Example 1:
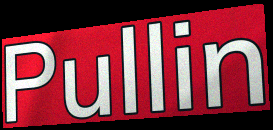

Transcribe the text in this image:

Pullin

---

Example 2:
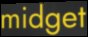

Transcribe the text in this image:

midget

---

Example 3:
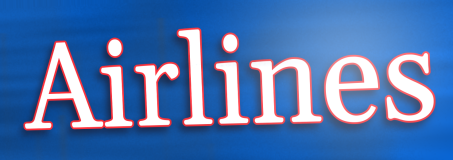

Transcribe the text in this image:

Airlines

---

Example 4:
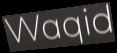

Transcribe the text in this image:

Waqid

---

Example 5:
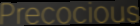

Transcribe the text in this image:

Precocious